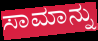
ಸಾಮಾನ್ನು